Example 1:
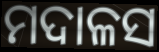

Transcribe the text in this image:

ମଦାଳସ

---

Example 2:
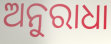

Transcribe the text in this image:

ଅନୁରାଧା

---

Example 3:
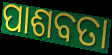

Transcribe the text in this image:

ପାଶବତା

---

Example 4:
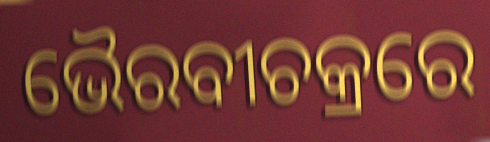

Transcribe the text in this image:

ଭୈରବୀଚକ୍ରରେ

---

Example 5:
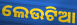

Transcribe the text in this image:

ଲେଉଟିଆ